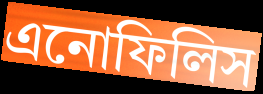
এনোফিলিস